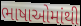
ભાષાઓમાંથી